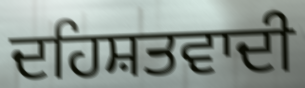
ਦਹਿਸ਼ਤਵਾਦੀ